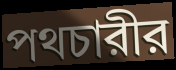
পথচারীর